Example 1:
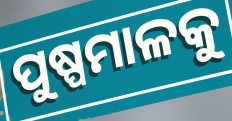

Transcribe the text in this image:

ପୁଷ୍ପମାଳକୁ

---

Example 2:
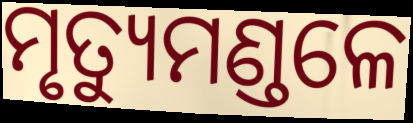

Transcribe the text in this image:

ମୃତ୍ୟୁମଣ୍ଡଳେ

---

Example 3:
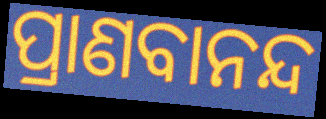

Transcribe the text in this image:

ପ୍ରାଣବାନନ୍ଦ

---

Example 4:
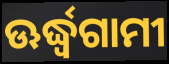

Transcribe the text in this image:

ଊର୍ଦ୍ଧ୍ଵଗାମୀ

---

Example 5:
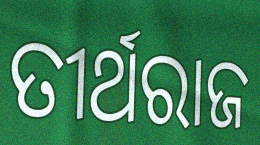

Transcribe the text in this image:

ତୀର୍ଥରାଜ